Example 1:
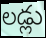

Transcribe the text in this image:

లడ్లు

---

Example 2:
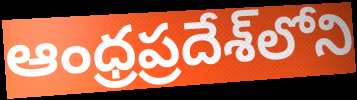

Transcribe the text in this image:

ఆంధ్రప్రదేశ్‌లోని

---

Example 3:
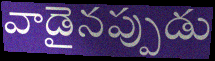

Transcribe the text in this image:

వాడైనప్పుడు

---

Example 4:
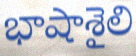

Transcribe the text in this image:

భాషాశైలి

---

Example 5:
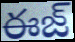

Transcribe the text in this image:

ఈజ్